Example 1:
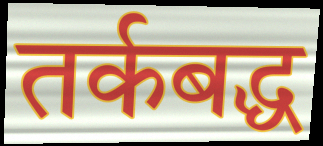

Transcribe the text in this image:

तर्कबद्ध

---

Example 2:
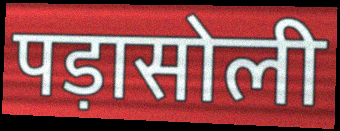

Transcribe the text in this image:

पड़ासोली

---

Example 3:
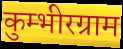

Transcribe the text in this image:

कुम्भीरग्राम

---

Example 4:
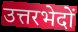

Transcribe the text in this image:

उत्तरभेदों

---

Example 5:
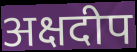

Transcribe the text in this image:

अक्षदीप